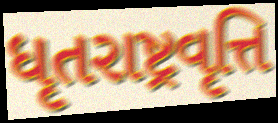
ધૃતરાષ્ટ્રવૃત્તિ